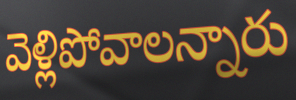
వెళ్లిపోవాలన్నారు